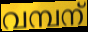
വമ്പന്